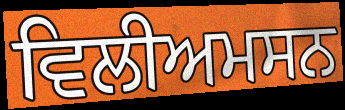
ਵਿਲੀਅਮਸਨ